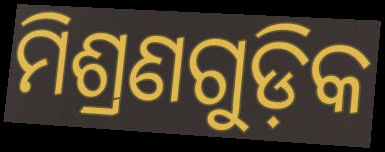
ମିଶ୍ରଣଗୁଡ଼ିକ